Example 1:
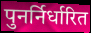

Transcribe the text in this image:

पुनर्निर्धारित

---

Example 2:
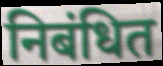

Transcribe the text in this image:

निबंधित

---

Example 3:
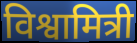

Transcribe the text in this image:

विश्वामित्री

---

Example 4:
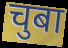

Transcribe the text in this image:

चुबा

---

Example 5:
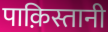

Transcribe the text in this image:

पाक़िस्तानी